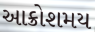
આક્રોશમય